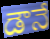
డౌనే